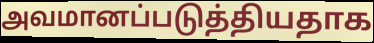
அவமானப்படுத்தியதாக